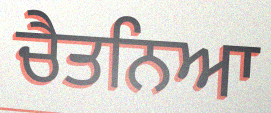
ਚੈਤਨਿਆ